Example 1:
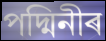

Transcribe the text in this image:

পদ্মিনীৰ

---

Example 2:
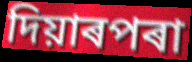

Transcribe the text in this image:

দিয়াৰপৰা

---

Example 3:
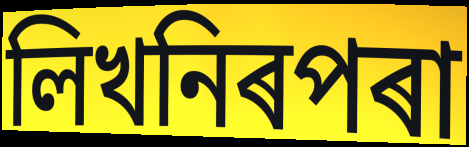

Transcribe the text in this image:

লিখনিৰপৰা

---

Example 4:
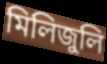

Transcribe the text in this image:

মিলিজুলি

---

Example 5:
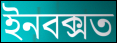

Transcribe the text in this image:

ইনবক্সত